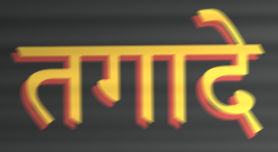
तगादे